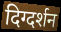
दिग्दर्शन